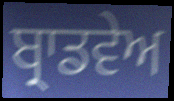
ਬ੍ਰਾਡਵੇਅ